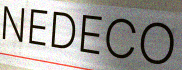
NEDECO